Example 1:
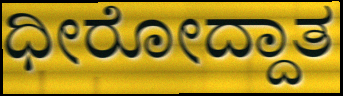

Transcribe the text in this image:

ಧೀರೋದ್ದಾತ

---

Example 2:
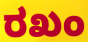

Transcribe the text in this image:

ರಖಂ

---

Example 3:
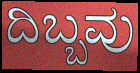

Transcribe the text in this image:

ದಿಬ್ಬವು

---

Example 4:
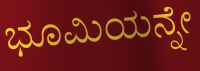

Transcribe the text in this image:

ಭೂಮಿಯನ್ನೇ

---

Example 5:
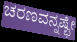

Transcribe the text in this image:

ಚರಣವನ್ನಷ್ಟೇ